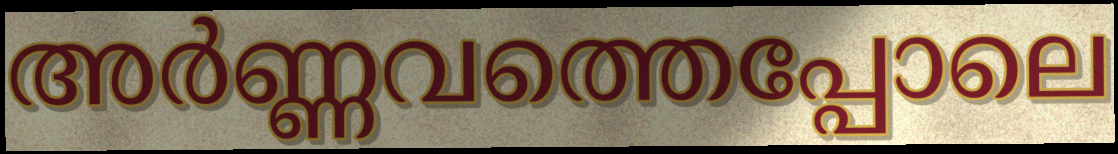
അർണ്ണവത്തെപ്പോലെ